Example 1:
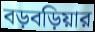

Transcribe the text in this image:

বড়বড়িয়ার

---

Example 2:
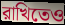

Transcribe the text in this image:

রাখিতেও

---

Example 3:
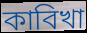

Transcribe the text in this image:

কাবিখা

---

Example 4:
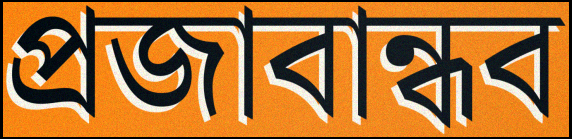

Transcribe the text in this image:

প্রজাবান্ধব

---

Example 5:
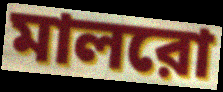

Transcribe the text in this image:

মালরো